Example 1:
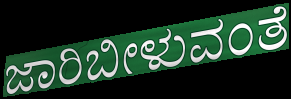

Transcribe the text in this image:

ಜಾರಿಬೀಳುವಂತೆ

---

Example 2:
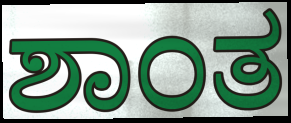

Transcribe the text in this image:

ಶಾಂತ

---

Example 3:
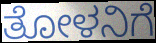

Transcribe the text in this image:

ತೋಳನಿಗೆ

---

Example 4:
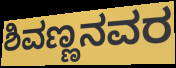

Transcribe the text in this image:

ಶಿವಣ್ಣನವರ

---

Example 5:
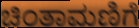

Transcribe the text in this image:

ಚಿಂತಾಮಣಿಗೆ